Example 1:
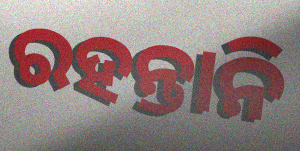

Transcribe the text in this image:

ରହନ୍ତାନି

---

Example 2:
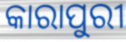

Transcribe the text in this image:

କାରାପୁରୀ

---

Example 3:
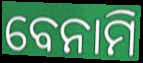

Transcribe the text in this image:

ବେନାମି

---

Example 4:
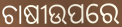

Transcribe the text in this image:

ଚାଷୀଉପରେ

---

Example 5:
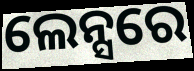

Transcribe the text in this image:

ଲେନ୍ସରେ